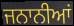
ਜਨਾਨੀਆਂ